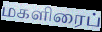
மகளிரைப்